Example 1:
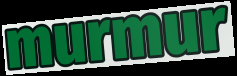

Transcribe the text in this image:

murmur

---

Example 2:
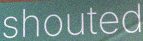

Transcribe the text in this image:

shouted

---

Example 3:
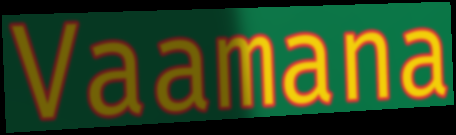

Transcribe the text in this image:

Vaamana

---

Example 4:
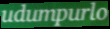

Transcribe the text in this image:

udumpurlo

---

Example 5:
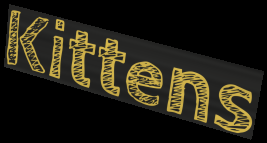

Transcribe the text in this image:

Kittens